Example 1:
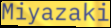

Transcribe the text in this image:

Miyazaki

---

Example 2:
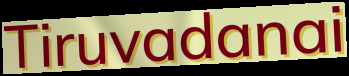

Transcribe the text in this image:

Tiruvadanai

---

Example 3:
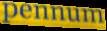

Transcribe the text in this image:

pennum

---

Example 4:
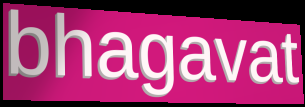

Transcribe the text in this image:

bhagavat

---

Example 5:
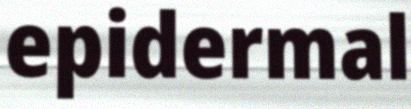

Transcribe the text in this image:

epidermal